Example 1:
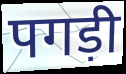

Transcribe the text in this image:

पगड़ी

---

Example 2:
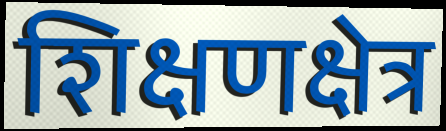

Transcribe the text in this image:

शिक्षणक्षेत्र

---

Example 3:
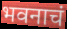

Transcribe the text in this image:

भवनाचं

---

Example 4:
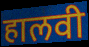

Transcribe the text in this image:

हालवी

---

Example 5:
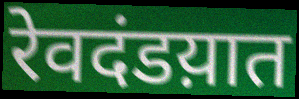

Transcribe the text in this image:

रेवदंडय़ात